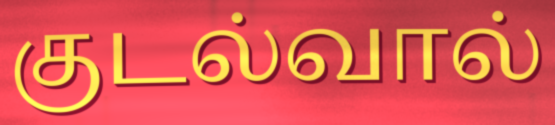
குடல்வால்